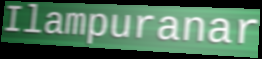
Ilampuranar